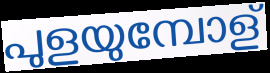
പുളയുമ്പോള്